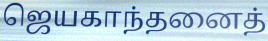
ஜெயகாந்தனைத்